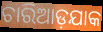
ଚାରିଆଡ଼ଯାକ